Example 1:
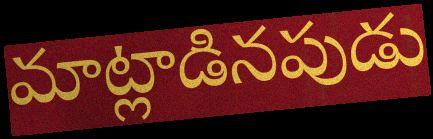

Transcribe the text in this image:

మాట్లాడినపుడు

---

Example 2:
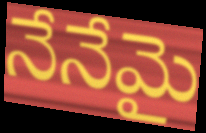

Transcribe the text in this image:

నేనేమై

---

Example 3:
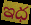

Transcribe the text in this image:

ఇధ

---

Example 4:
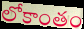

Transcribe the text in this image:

లోకాంతం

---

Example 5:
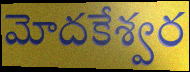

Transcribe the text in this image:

మోదకేశ్వర